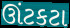
ઊંટકટા